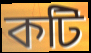
কটি